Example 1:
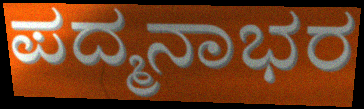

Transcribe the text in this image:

ಪದ್ಮನಾಭರ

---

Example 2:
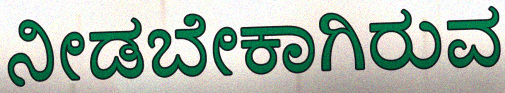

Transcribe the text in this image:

ನೀಡಬೇಕಾಗಿರುವ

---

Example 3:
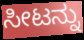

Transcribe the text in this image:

ಸೀಟನ್ನು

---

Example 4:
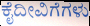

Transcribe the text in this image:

ಕೈದೀವಿಗೆಗಳು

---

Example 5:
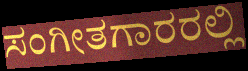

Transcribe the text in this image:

ಸಂಗೀತಗಾರರಲ್ಲಿ